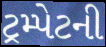
ટ્રમ્પેટની